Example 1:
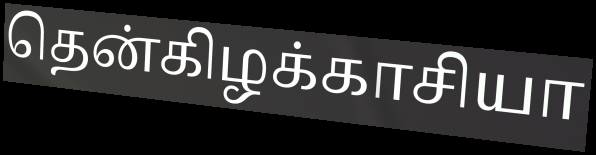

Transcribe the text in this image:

தென்கிழக்காசியா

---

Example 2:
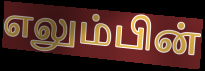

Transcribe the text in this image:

எலும்பின்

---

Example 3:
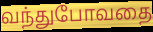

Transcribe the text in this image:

வந்துபோவதை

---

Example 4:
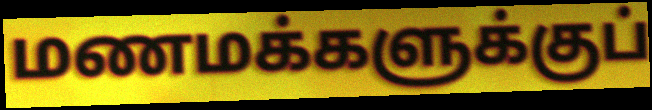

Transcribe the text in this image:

மணமக்களுக்குப்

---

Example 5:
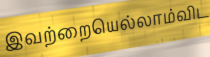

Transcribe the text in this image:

இவற்றையெல்லாம்விட